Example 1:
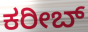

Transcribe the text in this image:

ಕರೀಬ್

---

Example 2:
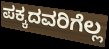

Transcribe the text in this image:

ಪಕ್ಕದವರಿಗೆಲ್ಲ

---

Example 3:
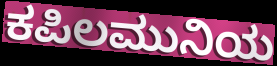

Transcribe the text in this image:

ಕಪಿಲಮುನಿಯ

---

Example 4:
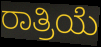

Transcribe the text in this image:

ರಾತ್ರಿಯೆ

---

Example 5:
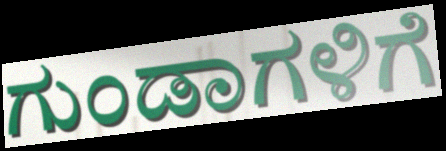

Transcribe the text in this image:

ಗುಂಡಾಗಳಿಗೆ